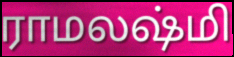
ராமலஷ்மி